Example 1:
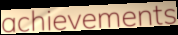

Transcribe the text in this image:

achievements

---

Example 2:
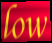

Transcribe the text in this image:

low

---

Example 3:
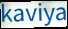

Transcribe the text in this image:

kaviya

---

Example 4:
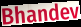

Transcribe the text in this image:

Bhandev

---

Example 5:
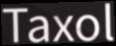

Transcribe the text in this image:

Taxol